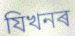
যিখনৰ